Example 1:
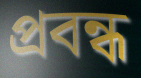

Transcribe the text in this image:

প্রবন্ধ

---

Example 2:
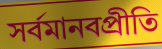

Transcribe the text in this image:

সর্বমানবপ্রীতি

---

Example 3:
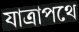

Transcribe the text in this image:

যাত্রাপথে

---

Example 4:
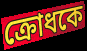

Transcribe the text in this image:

ক্রোধকে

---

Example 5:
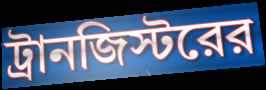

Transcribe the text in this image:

ট্রানজিস্টরের